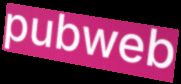
pubweb